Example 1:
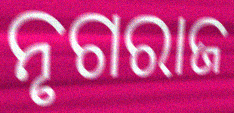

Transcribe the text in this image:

ନୃଗରାଜ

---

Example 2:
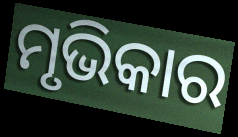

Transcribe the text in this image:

ମୃଭିକାର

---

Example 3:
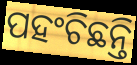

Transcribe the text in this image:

ପହଂଚିଛନ୍ତି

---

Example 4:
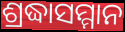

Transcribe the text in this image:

ଶ୍ରଦ୍ଧାସମ୍ମାନ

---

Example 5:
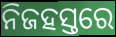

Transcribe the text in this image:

ନିଜହସ୍ତରେ